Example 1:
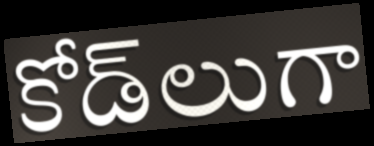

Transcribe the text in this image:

కోడ్‌లుగా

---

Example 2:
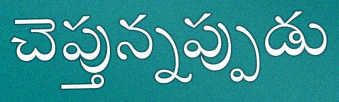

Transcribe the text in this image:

చెప్తున్నప్పుడు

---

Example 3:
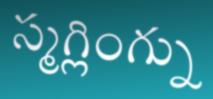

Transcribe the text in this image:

స్మగ్లింగ్ను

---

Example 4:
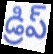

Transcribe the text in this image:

డ్రిప్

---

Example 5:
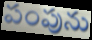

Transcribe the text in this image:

పంపును